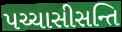
પચ્ચાસીસન્તિ